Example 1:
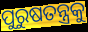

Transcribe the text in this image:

ପୁରୁଷତନ୍ତ୍ରକୁ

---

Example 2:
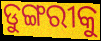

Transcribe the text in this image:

ଡୁଙ୍ଗରୀକୁ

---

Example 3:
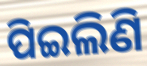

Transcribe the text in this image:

ପିଇଲିଣି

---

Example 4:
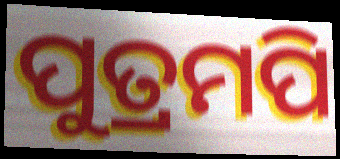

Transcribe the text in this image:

ପୁତ୍ରମପି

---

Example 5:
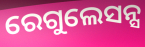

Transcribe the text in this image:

ରେଗୁଲେସନ୍ସ